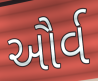
ઔર્વ